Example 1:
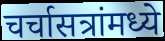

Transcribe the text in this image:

चर्चासत्रांमध्ये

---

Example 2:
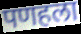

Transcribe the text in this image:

पणहला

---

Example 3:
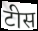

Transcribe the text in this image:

टीस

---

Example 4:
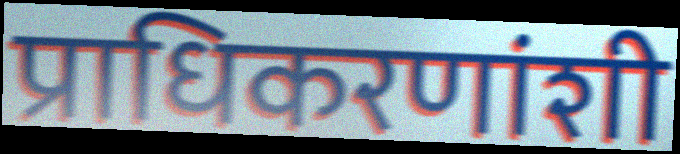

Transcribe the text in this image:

प्राधिकरणांशी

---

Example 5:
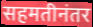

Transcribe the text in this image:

सहमतीनंतर